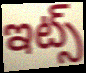
ఇట్స్